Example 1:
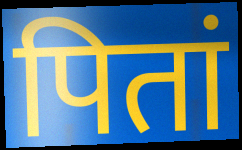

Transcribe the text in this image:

पितां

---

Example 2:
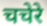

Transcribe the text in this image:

चचेरे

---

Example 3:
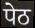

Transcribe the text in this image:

पेठ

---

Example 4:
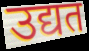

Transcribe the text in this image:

उद्यत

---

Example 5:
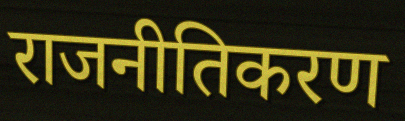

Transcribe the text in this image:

राजनीतिकरण